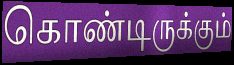
கொண்டிருக்கும்